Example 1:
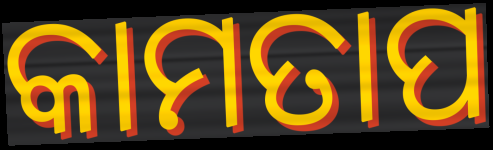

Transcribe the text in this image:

କାମତାପ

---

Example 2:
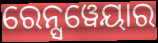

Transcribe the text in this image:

ରେନ୍ସୱେୟାର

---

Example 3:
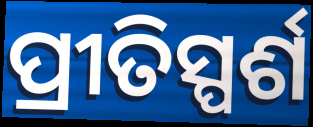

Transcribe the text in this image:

ପ୍ରୀତିସ୍ପର୍ଶ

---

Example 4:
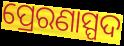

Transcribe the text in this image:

ପ୍ରେରଣାସ୍ପଦ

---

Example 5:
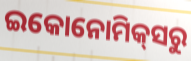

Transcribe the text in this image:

ଇକୋନୋମିକ୍‌ସରୁ